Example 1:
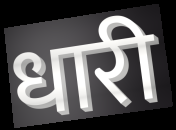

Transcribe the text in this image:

धारी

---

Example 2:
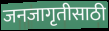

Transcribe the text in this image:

जनजागृतीसाठी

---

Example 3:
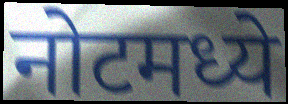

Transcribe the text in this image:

नोटमध्ये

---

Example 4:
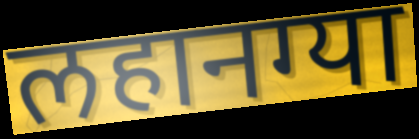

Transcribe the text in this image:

लहानग्या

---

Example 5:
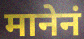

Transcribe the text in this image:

मानेनं